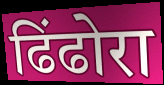
ढिंढोरा